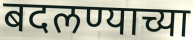
बदलण्याच्या